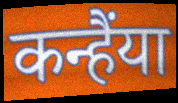
कन्हैंया